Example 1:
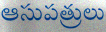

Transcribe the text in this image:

ఆసుపత్రులు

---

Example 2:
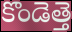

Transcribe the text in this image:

కొండెత్తె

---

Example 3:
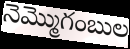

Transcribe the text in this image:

నెమ్మొగంబుల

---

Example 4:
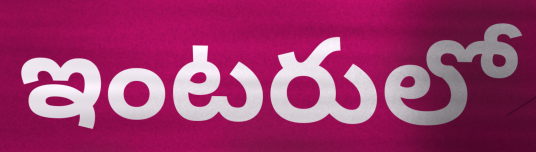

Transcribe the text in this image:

ఇంటరులో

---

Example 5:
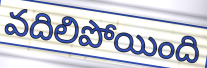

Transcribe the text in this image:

వదిలిపోయింది